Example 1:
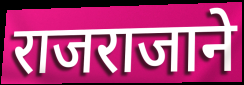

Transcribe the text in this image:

राजराजाने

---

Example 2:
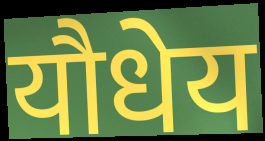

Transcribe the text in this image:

यौधेय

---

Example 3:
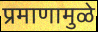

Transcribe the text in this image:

प्रमाणामुळे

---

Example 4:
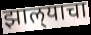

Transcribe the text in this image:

झाल्याचा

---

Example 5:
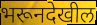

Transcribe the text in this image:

भरूनदेखील